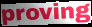
proving